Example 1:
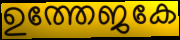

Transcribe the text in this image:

ഉത്തേജകേ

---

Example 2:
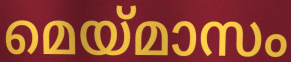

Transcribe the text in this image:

മെയ്മാസം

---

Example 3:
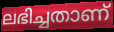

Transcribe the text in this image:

ലഭിച്ചതാണ്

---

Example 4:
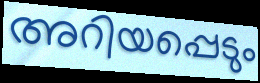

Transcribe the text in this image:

അറിയപ്പെടും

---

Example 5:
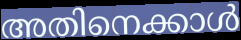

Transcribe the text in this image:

അതിനെക്കാൾ